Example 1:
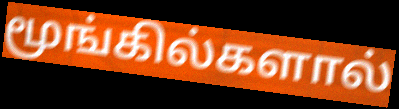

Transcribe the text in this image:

மூங்கில்களால்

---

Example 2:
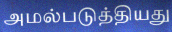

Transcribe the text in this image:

அமல்படுத்தியது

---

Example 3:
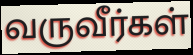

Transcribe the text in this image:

வருவீர்கள்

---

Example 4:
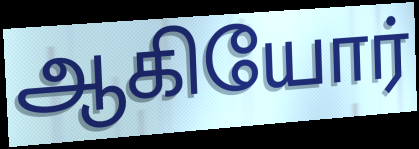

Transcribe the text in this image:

ஆகியோர்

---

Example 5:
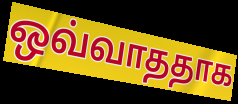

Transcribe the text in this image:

ஒவ்வாததாக